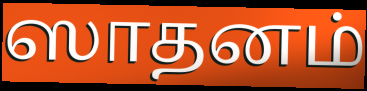
ஸாதனம்